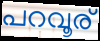
പറവൂര്